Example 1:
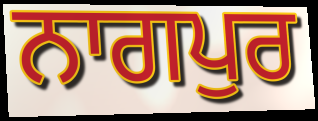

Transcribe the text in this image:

ਨਾਗਪੁਰ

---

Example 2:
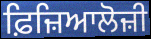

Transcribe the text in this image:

ਫ਼ਿਜ਼ਿਆਲੋਜ਼ੀ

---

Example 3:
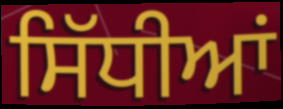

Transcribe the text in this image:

ਸਿੱਧੀਆਂ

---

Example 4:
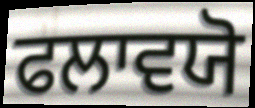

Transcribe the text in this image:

ਫਲਾਵਯੋ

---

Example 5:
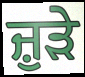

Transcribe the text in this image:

ਜ਼ੁੜੇ